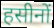
हसीनों